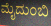
ಮೈದುಂಬಿ